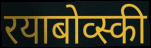
रयाबोव्स्की